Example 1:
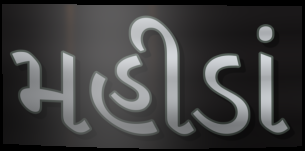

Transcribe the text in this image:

મહીડાં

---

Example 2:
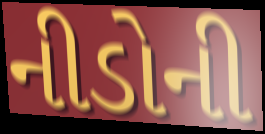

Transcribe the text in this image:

નીડોની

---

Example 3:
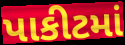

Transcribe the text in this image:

પાકીટમાં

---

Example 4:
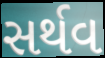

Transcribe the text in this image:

સર્થવ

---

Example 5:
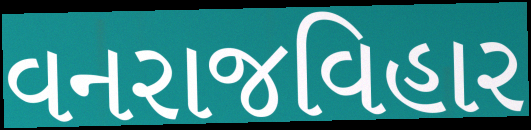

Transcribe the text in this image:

વનરાજવિહાર